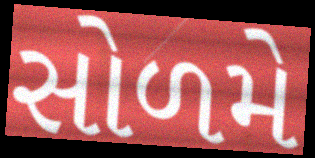
સોળમે